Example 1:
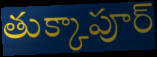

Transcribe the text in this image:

తుక్కాపూర్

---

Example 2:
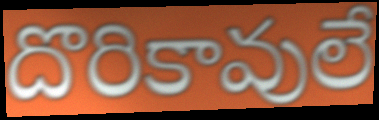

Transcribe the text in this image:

దొరికావులే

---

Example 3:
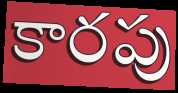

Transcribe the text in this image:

కారపు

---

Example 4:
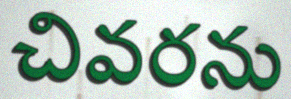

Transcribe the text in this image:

చివరను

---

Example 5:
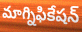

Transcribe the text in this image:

మాగ్నిఫికేషన్